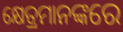
କ୍ଷେତ୍ରମାନଙ୍କରେ